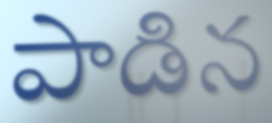
పాడిన